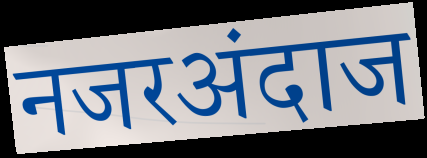
नजरअंदाज